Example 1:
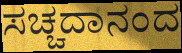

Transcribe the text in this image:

ಸಚ್ಚದಾನಂದ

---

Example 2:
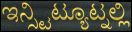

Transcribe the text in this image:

ಇನ್ಸ್ಟಿಟ್ಯೂಟ್ನಲ್ಲಿ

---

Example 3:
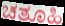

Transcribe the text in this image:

ಚತೂಹಿ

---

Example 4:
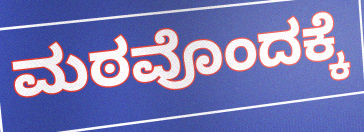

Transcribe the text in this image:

ಮಠವೊಂದಕ್ಕೆ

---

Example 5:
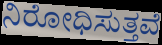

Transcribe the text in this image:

ನಿರೋಧಿಸುತ್ತವೆ